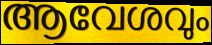
ആവേശവും